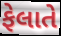
ફેલાતે